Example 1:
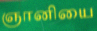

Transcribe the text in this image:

ஞானியை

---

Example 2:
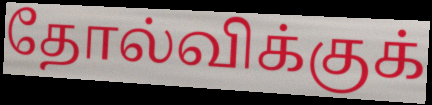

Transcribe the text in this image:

தோல்விக்குக்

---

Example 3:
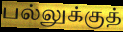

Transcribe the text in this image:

பல்லுக்குத்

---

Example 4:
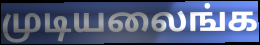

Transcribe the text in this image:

முடியலைங்க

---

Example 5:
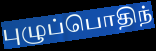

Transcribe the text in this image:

புழுப்பொதிந்